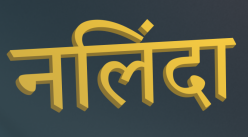
नलिंदा